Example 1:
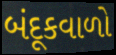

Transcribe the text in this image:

બંદૂકવાળો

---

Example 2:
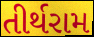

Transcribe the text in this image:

તીર્થરામ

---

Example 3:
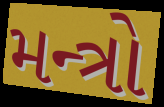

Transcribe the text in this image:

મન્ત્રો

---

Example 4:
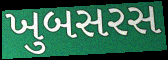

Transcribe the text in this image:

ખુબસરસ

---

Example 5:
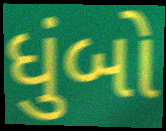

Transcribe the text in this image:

ધુંબો